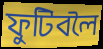
ফুটিবলৈ